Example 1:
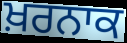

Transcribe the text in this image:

ਖ਼ਰਨਾਕ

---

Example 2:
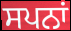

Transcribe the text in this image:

ਸਪਨਾਂ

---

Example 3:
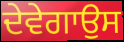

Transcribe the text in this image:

ਦੇਵੇਗਾਉਸ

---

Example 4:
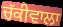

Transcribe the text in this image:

ਚੱਕੀਵਾਲਾ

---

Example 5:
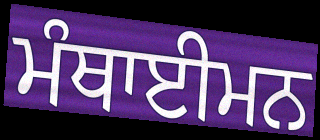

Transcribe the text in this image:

ਮੰਥਾਈਮਨ